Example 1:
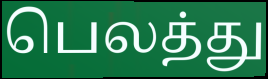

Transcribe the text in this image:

பெலத்து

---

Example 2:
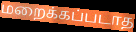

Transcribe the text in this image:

மறைக்கப்படாத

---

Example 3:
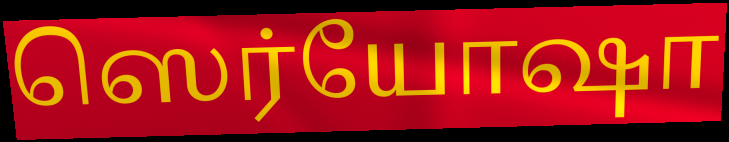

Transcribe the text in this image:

ஸெர்யோஷா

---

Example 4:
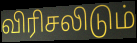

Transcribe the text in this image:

விரிசலிடும்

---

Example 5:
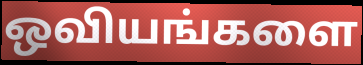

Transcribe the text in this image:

ஒவியங்களை